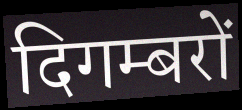
दिगम्बरों